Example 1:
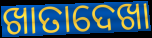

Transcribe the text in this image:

ଖାତାଦେଖା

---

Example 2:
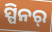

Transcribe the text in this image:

ସ୍ପିନର୍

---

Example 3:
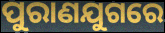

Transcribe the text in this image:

ପୁରାଣଯୁଗରେ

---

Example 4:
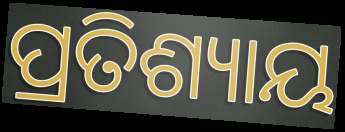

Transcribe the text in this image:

ପ୍ରତିଶ୍ୟାୟ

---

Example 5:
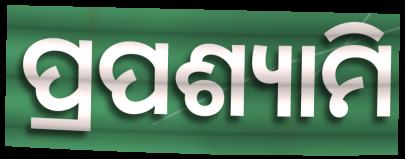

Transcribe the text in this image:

ପ୍ରପଶ୍ୟାମି